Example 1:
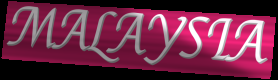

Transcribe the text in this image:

MALAYSIA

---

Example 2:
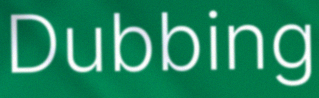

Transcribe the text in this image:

Dubbing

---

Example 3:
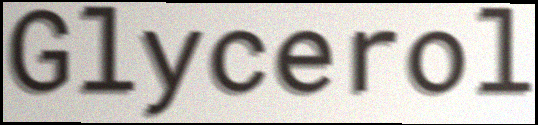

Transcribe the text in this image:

Glycerol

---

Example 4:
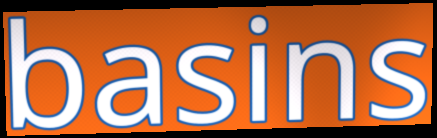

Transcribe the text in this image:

basins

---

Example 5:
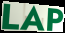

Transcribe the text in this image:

LAP